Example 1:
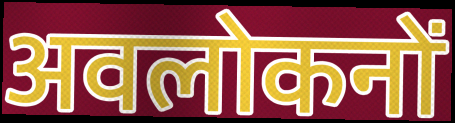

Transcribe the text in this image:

अवलोकनों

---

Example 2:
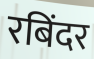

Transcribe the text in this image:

रबिंदर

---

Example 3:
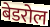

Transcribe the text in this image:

बेडरोल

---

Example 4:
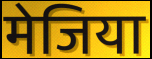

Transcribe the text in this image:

मेजिया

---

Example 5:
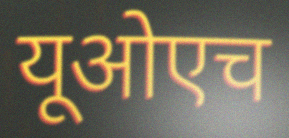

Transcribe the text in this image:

यूओएच